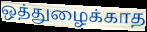
ஒத்துழைக்காத